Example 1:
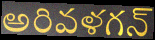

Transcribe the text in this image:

అరివళగన్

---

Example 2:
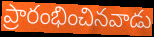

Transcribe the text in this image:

ప్రారంభించినవాడు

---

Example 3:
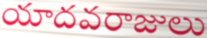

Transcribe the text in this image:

యాదవరాజులు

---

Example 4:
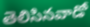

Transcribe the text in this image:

తెలిసినవాడో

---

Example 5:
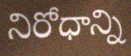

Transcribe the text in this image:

నిరోధాన్ని